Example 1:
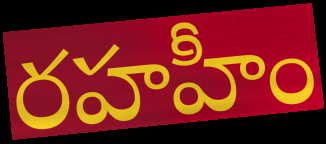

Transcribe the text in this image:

రహహీం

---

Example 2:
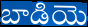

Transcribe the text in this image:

బాడియె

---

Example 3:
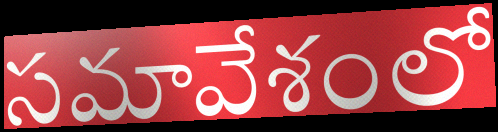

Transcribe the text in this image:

సమావేశంలో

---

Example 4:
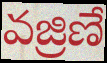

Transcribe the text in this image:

వజ్రిణే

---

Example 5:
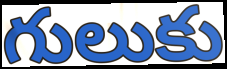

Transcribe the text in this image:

గులుకు